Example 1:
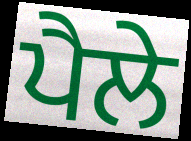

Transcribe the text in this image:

ਪੈਲੇ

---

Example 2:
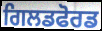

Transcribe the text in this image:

ਗਿਲਡਫੋਰਡ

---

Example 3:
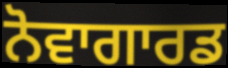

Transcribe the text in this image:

ਨੋਵਾਗਾਰਡ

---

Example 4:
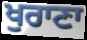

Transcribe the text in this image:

ਖੁਰਾਣਾ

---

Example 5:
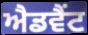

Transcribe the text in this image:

ਐਡਵੈਂਟ